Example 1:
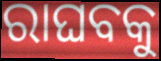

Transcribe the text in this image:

ରାଘବକୁ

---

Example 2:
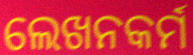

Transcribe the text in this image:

ଲେଖନକର୍ମ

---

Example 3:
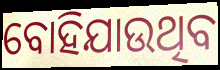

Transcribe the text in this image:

ବୋହିଯାଉଥିବ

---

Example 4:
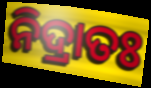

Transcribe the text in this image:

ନିଦ୍ରାତଃ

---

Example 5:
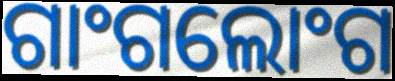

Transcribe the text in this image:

ଗାଂଗଲୋଂଗ